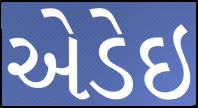
એડેઇ